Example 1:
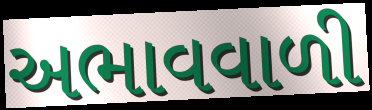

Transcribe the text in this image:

અભાવવાળી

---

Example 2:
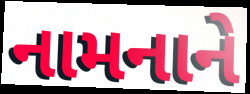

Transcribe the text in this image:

નામનાને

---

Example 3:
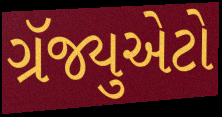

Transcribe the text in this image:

ગ્રૅજ્યુએટો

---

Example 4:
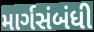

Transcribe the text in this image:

માર્ગસંબંધી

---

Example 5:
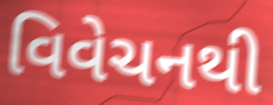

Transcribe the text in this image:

વિવેચનથી